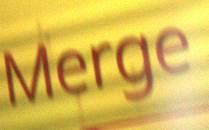
Merge